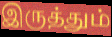
இருத்தும்